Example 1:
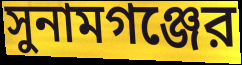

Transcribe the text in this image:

সুনামগঞ্জের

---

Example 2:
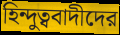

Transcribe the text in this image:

হিন্দুত্ববাদীদের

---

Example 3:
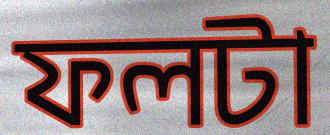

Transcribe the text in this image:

ফলটা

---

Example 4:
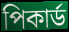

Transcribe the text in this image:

পিকার্ড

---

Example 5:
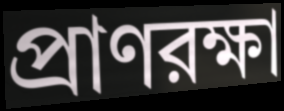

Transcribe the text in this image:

প্রাণরক্ষা